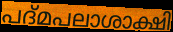
പദ്മപലാശാക്ഷി